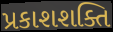
પ્રકાશશક્તિ